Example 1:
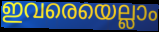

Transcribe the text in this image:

ഇവരെയെല്ലാം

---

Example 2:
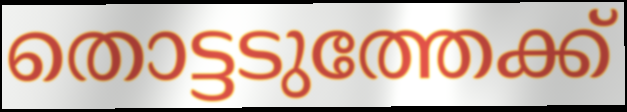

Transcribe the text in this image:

തൊട്ടടുത്തേക്ക്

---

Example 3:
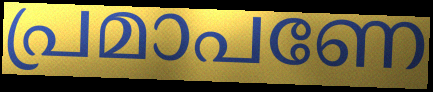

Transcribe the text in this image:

പ്രമാപണേ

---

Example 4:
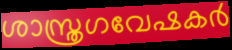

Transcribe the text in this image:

ശാസ്ത്രഗവേഷകർ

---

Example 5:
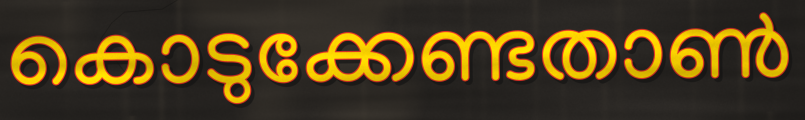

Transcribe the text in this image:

കൊടുക്കേണ്ടതാൺ